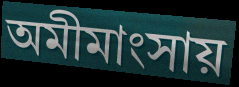
অমীমাংসায়